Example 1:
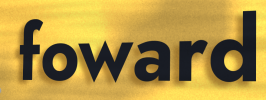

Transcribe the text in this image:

foward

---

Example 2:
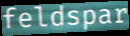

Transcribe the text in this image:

feldspar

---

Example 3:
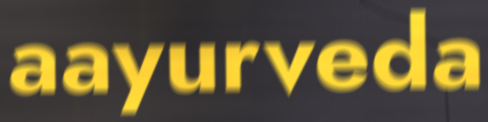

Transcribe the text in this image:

aayurveda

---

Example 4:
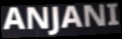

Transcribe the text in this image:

ANJANI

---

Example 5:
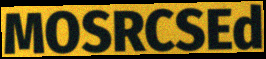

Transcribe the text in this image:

MOSRCSEd